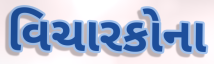
વિચારકોના